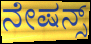
ನೇಷನ್ಸ್